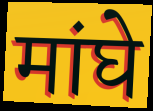
मांघे